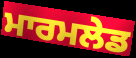
ਮਾਰਮਲੇਡ